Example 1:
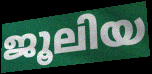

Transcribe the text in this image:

ജൂലിയ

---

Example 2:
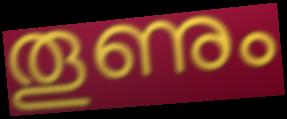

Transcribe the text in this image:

തൂണും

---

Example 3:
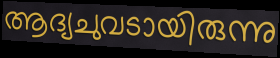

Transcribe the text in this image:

ആദ്യചുവടായിരുന്നു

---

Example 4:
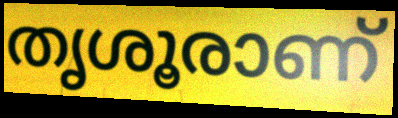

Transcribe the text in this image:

തൃശൂരാണ്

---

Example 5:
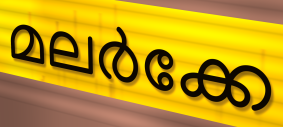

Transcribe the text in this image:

മലർക്കേ